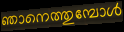
ഞാനെത്തുമ്പോൾ